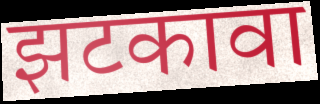
झटकावा